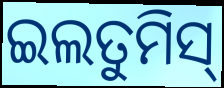
ଇଲତୁମିସ୍